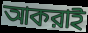
আকরাই